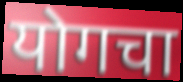
योगचा